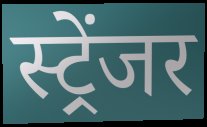
स्ट्रेंजर